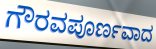
ಗೌರವಪೂರ್ಣವಾದ